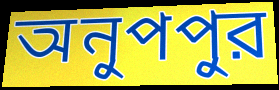
অনুপপুর